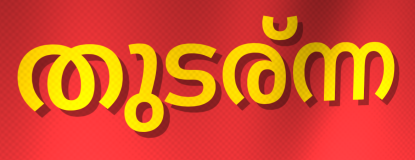
തുടര്ന്ന